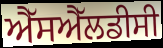
ਐੱਸਐੱਲਡੀਸੀ